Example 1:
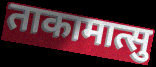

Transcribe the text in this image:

ताकामात्सु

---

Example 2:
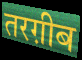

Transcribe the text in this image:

तरग़ीब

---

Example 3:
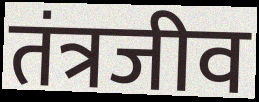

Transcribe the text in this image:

तंत्रजीव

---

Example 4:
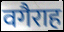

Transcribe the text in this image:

वगैराह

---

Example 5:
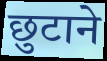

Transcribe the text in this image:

छुटाने